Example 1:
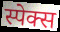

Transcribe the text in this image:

स्पेक्स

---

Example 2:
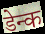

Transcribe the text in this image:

डेन्क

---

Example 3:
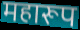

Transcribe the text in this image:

महारूप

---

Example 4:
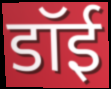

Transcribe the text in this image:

डॉई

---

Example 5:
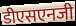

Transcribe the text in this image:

डीएसएनजी